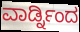
ವಾರ್ಡ್ನಿಂದ